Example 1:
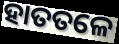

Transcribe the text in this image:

ହାତତଳେ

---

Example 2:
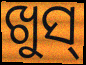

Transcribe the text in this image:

ଖୁସ୍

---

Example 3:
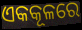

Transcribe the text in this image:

ଏକକୂଳରେ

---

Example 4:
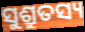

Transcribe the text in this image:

ସୁଶ୍ରୁତସ୍ୟ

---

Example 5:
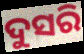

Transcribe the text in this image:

ଦୁସରି